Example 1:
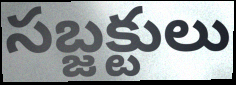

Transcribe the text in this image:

సబ్జక్టులు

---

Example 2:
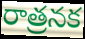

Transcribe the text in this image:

రాత్రనక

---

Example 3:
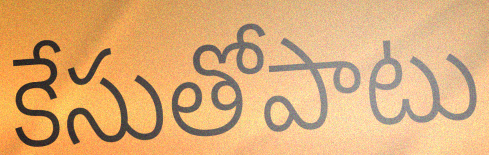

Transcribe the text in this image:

కేసుతోపాటు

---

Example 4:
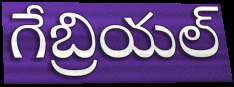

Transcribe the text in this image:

గేబ్రియల్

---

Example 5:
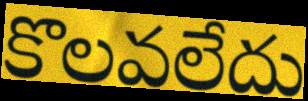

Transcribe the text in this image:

కొలవలేదు